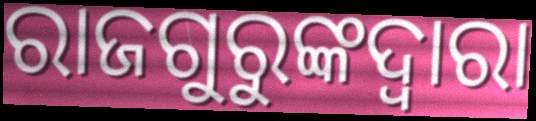
ରାଜଗୁରୁଙ୍କଦ୍ୱାରା